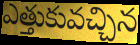
ఎత్తుకువచ్చిన